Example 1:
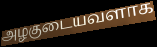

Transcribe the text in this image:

அழகுடையவளாக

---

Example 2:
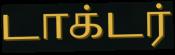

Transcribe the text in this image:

டாக்டர்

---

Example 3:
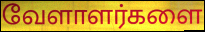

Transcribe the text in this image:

வேளாளர்களை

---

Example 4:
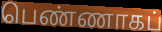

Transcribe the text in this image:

பெண்ணாகப்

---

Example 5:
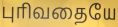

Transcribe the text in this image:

புரிவதையே